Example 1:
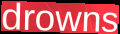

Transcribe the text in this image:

drowns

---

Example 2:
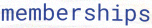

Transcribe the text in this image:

memberships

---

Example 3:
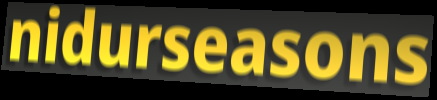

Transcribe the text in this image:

nidurseasons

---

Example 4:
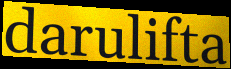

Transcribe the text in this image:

darulifta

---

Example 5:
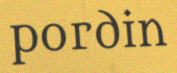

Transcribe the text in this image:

pordin